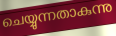
ചെയ്യുന്നതാകുന്നു